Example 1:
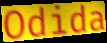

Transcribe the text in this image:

Odida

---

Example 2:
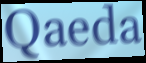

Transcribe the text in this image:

Qaeda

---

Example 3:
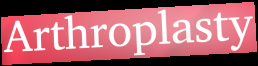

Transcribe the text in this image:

Arthroplasty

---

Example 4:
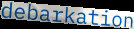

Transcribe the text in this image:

debarkation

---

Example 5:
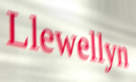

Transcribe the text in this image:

Llewellyn